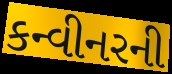
કન્વીનરની